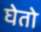
घेतो